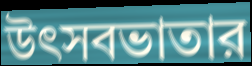
উৎসবভাতার